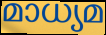
മാധ്യമ